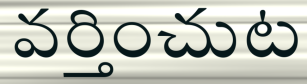
వర్తించుట